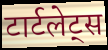
टार्टलेट्स